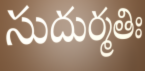
సుదుర్మతిః